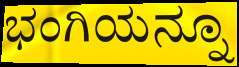
ಭಂಗಿಯನ್ನೂ